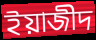
ইয়াজীদ